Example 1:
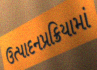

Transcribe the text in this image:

ઉત્પાદનપ્રક્રિયામાં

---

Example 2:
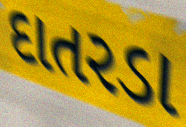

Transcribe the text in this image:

દાતરડા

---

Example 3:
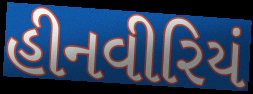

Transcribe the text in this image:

હીનવીરિયં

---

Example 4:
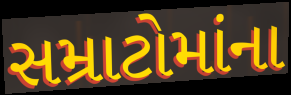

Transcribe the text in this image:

સમ્રાટોમાંના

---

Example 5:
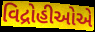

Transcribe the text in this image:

વિદ્રોહીઓએ